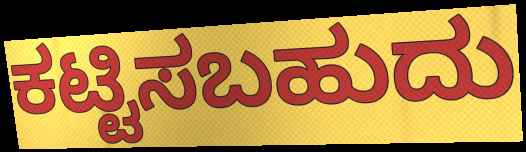
ಕಟ್ಟಿಸಬಹುದು